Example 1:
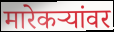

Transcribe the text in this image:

मारेकऱ्यांवर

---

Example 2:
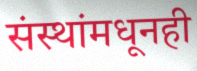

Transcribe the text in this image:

संस्थांमधूनही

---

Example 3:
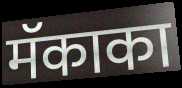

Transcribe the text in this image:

मॅकाका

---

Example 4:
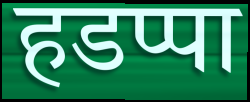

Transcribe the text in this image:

हडप्पा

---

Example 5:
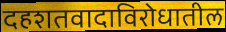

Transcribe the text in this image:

दहशतवादाविरोधातील